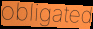
obligated